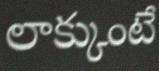
లాక్కుంటే